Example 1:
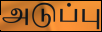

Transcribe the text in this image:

அடுப்பு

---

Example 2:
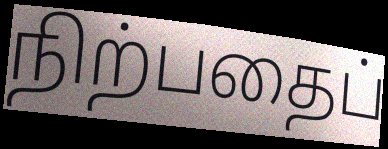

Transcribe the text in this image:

நிற்பதைப்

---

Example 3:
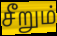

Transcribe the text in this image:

சீறும்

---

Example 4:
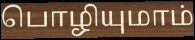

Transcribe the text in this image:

பொழியுமாம்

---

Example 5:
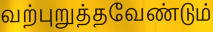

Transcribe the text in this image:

வற்புறுத்தவேண்டும்